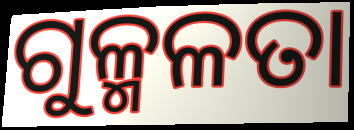
ଗୁଳ୍ମଳତା